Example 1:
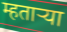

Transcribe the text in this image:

म्हताऱ्या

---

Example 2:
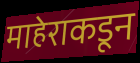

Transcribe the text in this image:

माहेराकडून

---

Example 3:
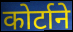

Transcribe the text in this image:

कोर्टाने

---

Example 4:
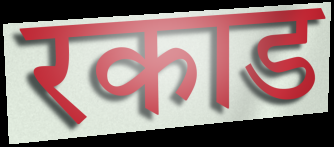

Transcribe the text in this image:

रकाड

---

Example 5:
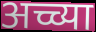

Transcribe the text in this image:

अच्च्या